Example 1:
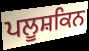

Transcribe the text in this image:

ਪਲੂਸ਼ਕਿਨ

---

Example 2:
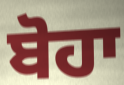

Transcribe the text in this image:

ਬੋਹਾ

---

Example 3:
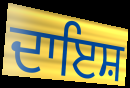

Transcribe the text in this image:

ਦਾਇਸ਼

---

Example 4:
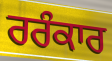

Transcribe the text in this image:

ਰਰੰਕਾਰ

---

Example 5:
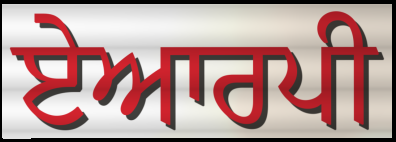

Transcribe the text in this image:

ਏਆਰਪੀ